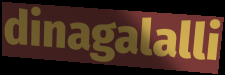
dinagalalli